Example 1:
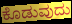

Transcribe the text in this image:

ಕೊಡುವುದು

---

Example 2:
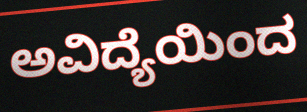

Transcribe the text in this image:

ಅವಿದ್ಯೆಯಿಂದ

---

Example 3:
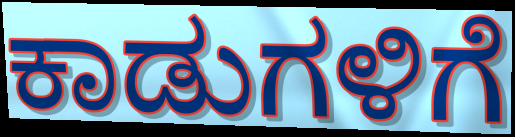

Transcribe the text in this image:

ಕಾಡುಗಳಿಗೆ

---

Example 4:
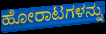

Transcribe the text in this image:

ಹೋರಾಟಗಳನ್ನು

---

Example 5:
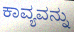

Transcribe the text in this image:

ಕಾವ್ಯವನ್ನು